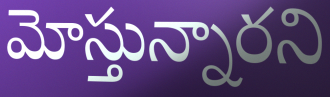
మోస్తున్నారని